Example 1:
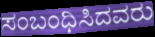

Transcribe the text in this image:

ಸಂಬಂಧಿಸಿದವರು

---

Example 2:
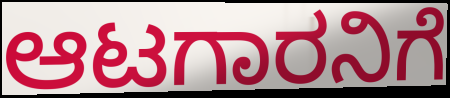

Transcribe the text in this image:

ಆಟಗಾರನಿಗೆ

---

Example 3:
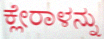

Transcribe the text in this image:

ಕ್ಲೇರಾಳನ್ನು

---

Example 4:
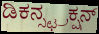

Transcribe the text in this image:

ಡಿಕನ್ಸ್ಟ್ರಕ್ಷನ್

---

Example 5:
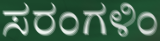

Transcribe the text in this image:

ಸರಂಗಳಿಂ